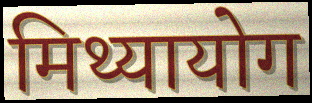
मिथ्यायोग